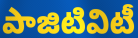
పాజిటివిటీ